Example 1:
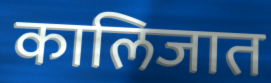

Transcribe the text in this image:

कालिजात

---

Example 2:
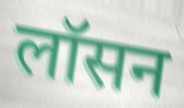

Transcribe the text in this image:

लॉसन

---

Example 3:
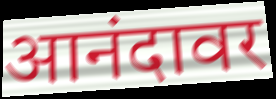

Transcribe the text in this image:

आनंदावर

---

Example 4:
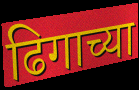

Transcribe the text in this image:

ढिगाच्या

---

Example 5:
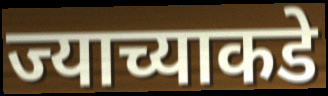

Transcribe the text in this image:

ज्याच्याकडे